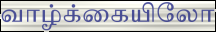
வாழ்க்கையிலோ